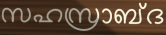
സഹസ്രാബ്ദ